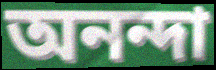
অনন্দা